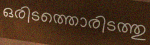
ഒരിടത്തൊരിടത്തു